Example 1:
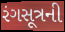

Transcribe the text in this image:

રંગસૂત્રની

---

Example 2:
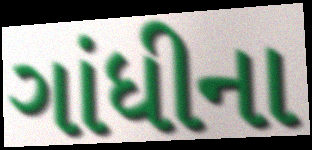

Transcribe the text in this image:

ગાંધીના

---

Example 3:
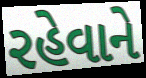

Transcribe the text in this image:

રહેવાને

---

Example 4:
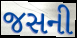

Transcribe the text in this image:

જસની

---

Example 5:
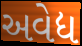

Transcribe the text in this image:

અવેદ્ય